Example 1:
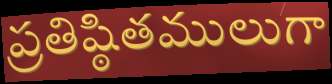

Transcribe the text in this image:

ప్రతిష్ఠితములుగా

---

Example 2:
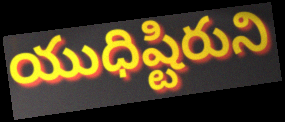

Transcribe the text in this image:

యుధిష్టిరుని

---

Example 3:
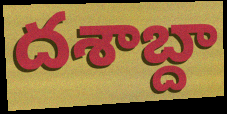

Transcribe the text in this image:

దశాబ్దా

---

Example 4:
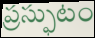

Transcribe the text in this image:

ప్రస్ఫుటం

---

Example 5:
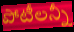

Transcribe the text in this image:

పోటీలన్నీ